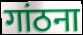
गांठना